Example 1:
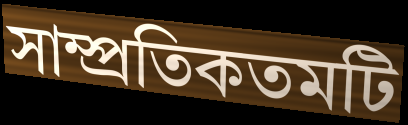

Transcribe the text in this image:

সাম্প্রতিকতমটি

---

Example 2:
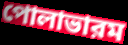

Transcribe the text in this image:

পোলাভারম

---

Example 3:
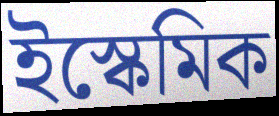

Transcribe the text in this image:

ইস্কেমিক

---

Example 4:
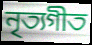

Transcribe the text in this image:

নৃত্যগীত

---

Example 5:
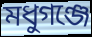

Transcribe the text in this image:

মধুগঞ্জে